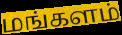
மங்களம்